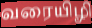
வரையிழி